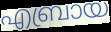
എബ്രായ